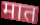
मात